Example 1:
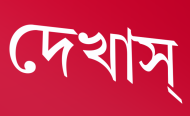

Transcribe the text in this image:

দেখাস্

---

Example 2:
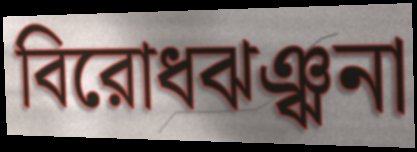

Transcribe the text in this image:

বিরোধঝঞ্ঝনা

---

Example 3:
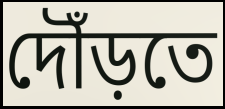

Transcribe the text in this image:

দৌঁড়তে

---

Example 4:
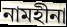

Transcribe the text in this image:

নামহীনা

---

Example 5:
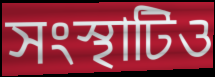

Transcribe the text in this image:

সংস্থাটিও